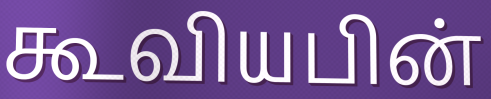
கூவியபின்